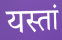
यस्तां